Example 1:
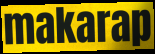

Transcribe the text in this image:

makarap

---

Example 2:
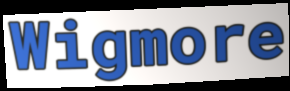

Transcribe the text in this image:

Wigmore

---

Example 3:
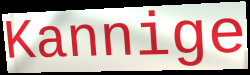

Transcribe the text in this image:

Kannige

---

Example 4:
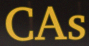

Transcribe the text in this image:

CAs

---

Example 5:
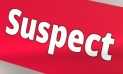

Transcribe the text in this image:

Suspect